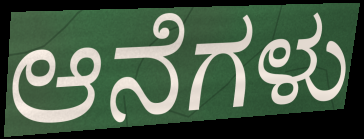
ಆನೆಗಳು